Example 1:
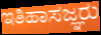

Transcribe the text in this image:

ಇತಿಹಾಸಜ್ಞರು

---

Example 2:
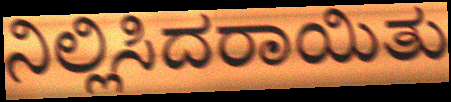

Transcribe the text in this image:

ನಿಲ್ಲಿಸಿದರಾಯಿತು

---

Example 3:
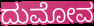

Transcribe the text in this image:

ದುಮೋವ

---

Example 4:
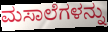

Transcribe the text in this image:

ಮಸಾಲೆಗಳನ್ನು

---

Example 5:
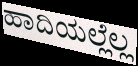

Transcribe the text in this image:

ಹಾದಿಯಲ್ಲೆಲ್ಲ